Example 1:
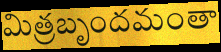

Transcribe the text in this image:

మిత్రబృందమంతా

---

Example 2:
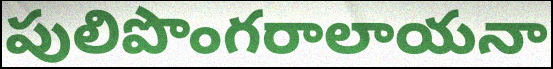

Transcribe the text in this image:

పులిపొంగరాలాయనా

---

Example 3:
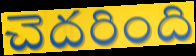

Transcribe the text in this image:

చెదరింది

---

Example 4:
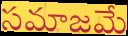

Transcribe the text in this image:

సమాజమే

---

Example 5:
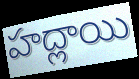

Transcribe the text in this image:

హద్లాయి